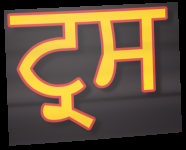
ਟ੍ਰਸ